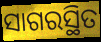
ସାଗରସ୍ଥିତ